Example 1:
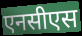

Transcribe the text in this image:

एनसीएस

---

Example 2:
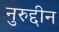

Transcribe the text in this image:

नुरुद्दीन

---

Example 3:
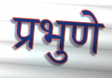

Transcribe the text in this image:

प्रभुणे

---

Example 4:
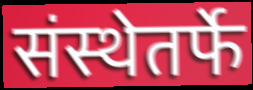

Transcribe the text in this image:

संस्थेतर्फे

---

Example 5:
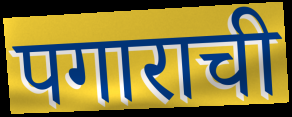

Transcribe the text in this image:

पगाराची